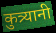
कुत्र्यानी